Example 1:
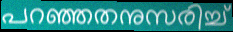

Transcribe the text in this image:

പറഞ്ഞതനുസരിച്ച്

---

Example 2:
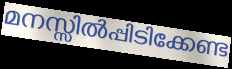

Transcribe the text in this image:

മനസ്സിൽപ്പിടിക്കേണ്ട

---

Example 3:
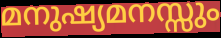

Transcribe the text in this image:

മനുഷ്യമനസ്സും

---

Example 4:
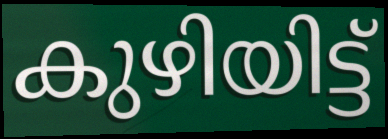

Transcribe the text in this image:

കുഴിയിട്ട്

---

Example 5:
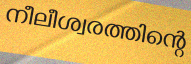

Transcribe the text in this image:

നീലീശ്വരത്തിന്റെ